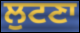
ਲੁਟਣਾ